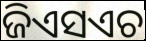
ଜିଏସଏଚ